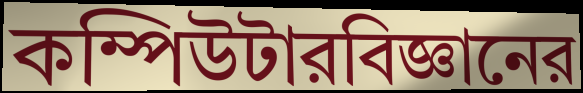
কম্পিউটারবিজ্ঞানের